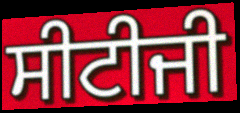
ਸੀਟੀਜੀ